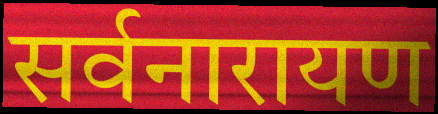
सर्वनारायण